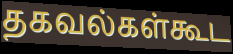
தகவல்கள்கூட